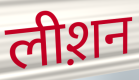
लीश़न